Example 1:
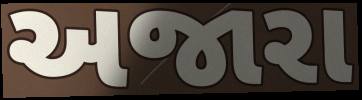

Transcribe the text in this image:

અજારા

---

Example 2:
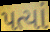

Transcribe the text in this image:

પત્યાં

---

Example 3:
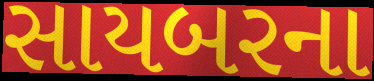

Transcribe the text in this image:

સાયબરના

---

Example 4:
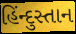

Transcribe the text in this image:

હિંન્દુસ્તાન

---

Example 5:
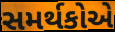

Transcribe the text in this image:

સમર્થકોએ